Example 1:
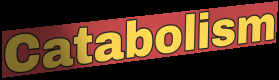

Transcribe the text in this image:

Catabolism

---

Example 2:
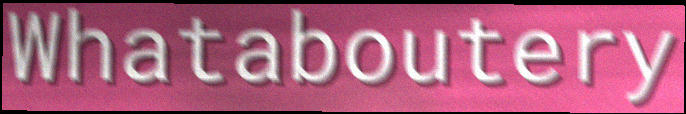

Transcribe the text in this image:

Whataboutery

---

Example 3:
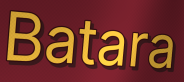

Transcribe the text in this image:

Batara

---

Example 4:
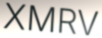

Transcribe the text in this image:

XMRV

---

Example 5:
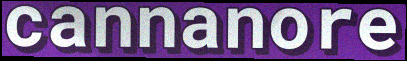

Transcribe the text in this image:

cannanore